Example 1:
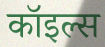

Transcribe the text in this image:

कॉइल्स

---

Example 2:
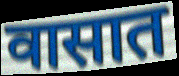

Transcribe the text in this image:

वासात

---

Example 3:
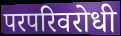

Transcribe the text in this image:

परपरिवरोधी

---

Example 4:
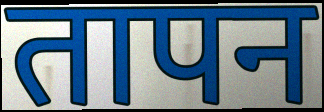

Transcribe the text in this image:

तापन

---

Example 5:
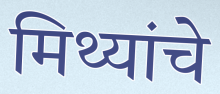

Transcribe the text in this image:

मिथ्यांचे